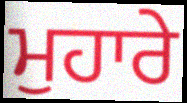
ਮੁਹਾਰੇ